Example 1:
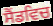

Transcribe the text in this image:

ਸੈਂਡਵਿਚ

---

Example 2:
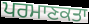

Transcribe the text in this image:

ਪਰਮਾਣਕਤਾ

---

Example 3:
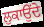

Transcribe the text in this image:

ਲੁਕਾਉਂਦੇ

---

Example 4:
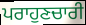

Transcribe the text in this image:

ਪਰਾਹੁਣਚਾਰੀ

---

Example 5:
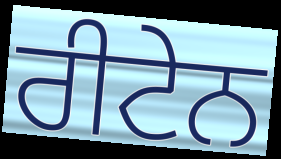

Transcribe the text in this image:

ਰੀਟੇਨ